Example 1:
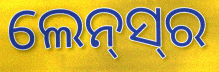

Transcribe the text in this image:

ଲେନ୍‌ସ୍‍ର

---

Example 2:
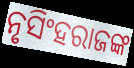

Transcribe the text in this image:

ନୃସିଂହରାଜଙ୍କ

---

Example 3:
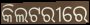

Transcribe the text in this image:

କିଲଟରୀରେ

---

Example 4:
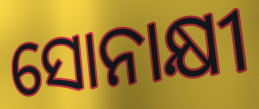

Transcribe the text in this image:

ସୋନାକ୍ଷୀ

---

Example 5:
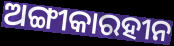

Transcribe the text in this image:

ଅଙ୍ଗୀକାରହୀନ